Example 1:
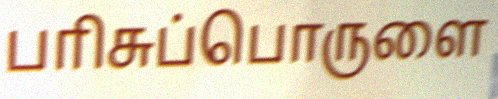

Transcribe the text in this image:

பரிசுப்பொருளை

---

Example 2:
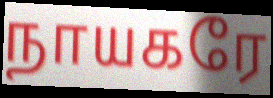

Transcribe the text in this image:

நாயகரே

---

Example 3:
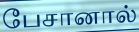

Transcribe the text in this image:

பேசானால்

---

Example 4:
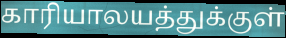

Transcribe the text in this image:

காரியாலயத்துக்குள்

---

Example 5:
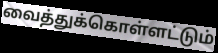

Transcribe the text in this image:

வைத்துக்கொள்ளட்டும்